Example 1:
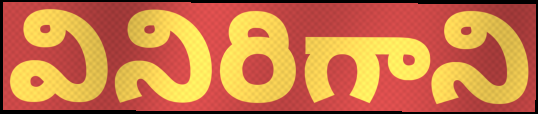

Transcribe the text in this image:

వినిరిగాని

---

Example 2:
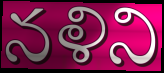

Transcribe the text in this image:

నళిని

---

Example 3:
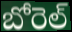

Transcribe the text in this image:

బోరెల్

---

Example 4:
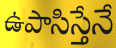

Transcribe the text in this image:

ఉపాసిస్తేనే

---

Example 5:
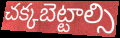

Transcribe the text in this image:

చక్కబెట్టాల్సి